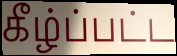
கீழ்ப்பட்ட